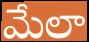
మేలా